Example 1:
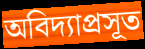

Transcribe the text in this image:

অবিদ্যাপ্রসূত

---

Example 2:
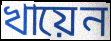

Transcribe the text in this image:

খায়েন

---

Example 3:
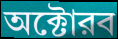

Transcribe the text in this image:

অক্টোরব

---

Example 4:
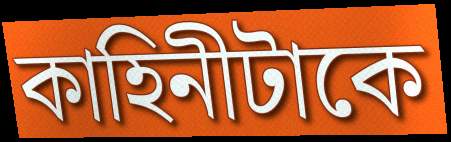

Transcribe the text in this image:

কাহিনীটাকে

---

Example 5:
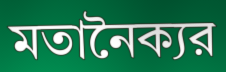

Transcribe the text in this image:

মতানৈক্যর